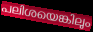
പലിശയെങ്കിലും